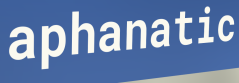
aphanatic